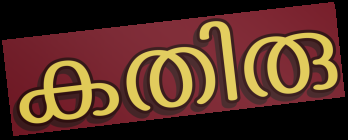
കതിരു